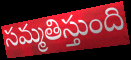
సమ్మతిస్తుంది